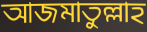
আজমাতুল্লাহ